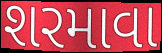
શરમાવા